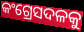
କଂଗ୍ରେସଦଳକୁ